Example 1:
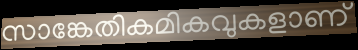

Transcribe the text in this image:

സാങ്കേതികമികവുകളാണ്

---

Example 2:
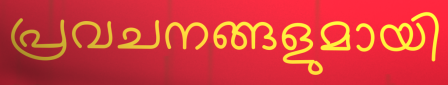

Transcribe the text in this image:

പ്രവചനങ്ങളുമായി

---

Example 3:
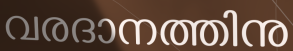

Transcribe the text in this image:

വരദാനത്തിനു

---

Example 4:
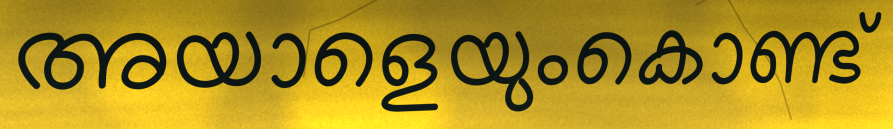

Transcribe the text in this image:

അയാളെയുംകൊണ്ട്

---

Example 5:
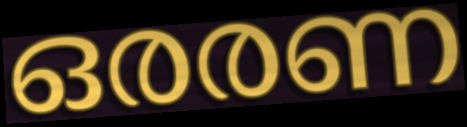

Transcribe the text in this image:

ഒരരണ